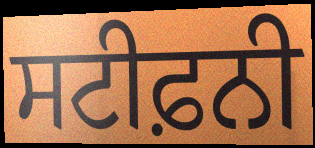
ਸਟੀਫ਼ਨੀ